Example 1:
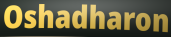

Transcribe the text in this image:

Oshadharon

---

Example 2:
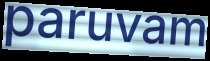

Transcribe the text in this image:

paruvam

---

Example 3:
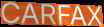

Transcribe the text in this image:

CARFAX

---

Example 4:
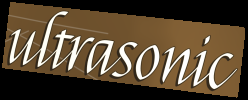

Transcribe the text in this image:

ultrasonic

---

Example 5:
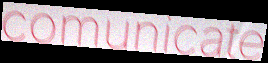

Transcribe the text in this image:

comunicate